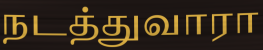
நடத்துவாரா